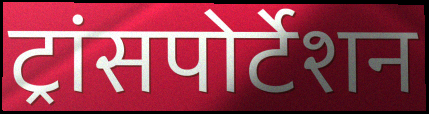
ट्रांसपोर्टेशन